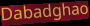
Dabadghao